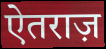
ऐतराज़